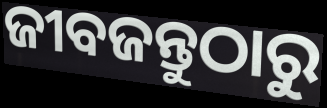
ଜୀବଜନ୍ତୁଠାରୁ